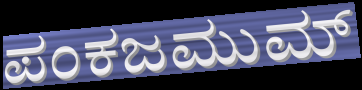
ಪಂಕಜಮುಮ್